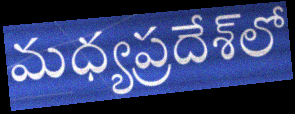
మధ్యప్రదేశ్‌లో